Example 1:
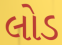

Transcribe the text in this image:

લોડ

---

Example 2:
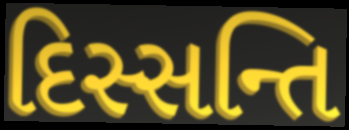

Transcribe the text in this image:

દિસ્સન્તિ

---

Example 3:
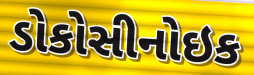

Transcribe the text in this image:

ડોકોસીનોઇક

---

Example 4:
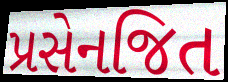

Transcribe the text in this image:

પ્રસેનજિત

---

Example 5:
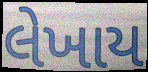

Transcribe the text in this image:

લેખાય